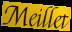
Meillet